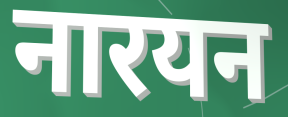
नारयन